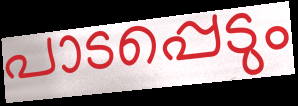
പാടപ്പെടും